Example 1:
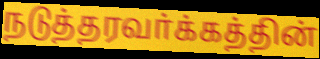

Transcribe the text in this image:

நடுத்தரவர்க்கத்தின்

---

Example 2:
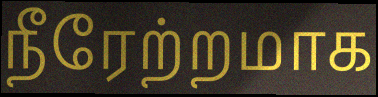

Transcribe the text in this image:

நீரேற்றமாக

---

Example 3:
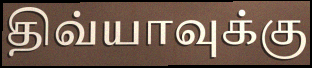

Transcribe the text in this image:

திவ்யாவுக்கு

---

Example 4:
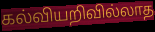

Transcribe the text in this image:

கல்வியறிவில்லாத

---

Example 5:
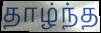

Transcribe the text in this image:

தாழ்ந்த